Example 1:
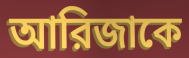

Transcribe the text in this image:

আরিজাকে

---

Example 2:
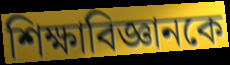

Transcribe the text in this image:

শিক্ষাবিজ্ঞানকে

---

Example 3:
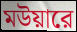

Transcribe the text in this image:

মউয়ারে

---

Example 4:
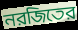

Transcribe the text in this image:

নরজিতের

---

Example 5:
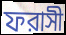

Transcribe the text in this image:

ফরাসী